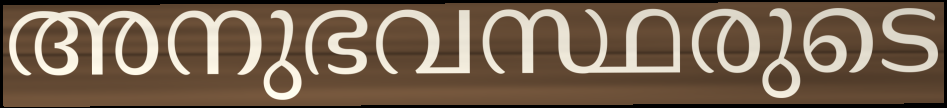
അനുഭവസ്ഥരുടെ